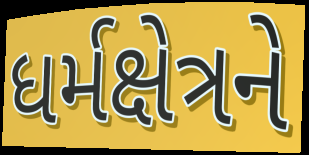
ધર્મક્ષેત્રને